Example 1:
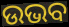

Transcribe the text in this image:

ଉଭବ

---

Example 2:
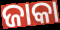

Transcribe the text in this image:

ଜାକା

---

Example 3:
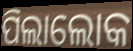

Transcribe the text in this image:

ପିଲାଲୋକ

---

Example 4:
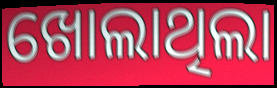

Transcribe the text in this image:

ଖୋଲାଥିଲା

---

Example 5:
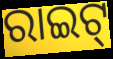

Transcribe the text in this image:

ରାଇଟ୍